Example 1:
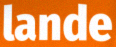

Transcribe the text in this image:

lande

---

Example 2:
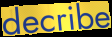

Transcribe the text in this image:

decribe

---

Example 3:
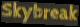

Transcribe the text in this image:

Skybreak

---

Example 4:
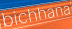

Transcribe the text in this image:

bichhana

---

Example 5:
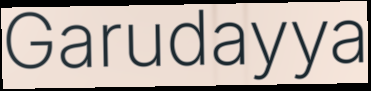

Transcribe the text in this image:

Garudayya